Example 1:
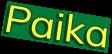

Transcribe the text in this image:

Paika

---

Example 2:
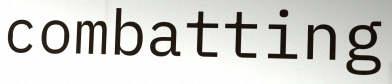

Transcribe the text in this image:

combatting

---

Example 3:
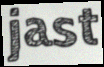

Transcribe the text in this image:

jast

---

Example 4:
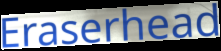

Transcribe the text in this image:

Eraserhead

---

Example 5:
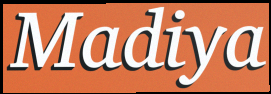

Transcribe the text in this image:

Madiya